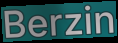
Berzin